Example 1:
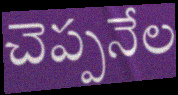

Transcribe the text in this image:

చెప్పనేల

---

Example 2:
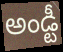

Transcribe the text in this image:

అండ్టీ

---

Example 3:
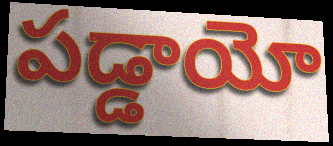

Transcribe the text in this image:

పడ్డాయో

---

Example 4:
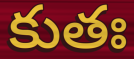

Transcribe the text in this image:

కుతః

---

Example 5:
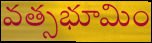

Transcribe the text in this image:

వత్సభూమిం